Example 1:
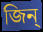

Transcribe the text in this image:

জিন্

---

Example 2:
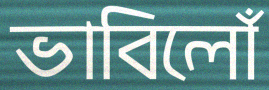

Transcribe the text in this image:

ভাবিলোঁ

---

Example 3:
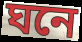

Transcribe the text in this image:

ঘনে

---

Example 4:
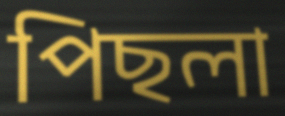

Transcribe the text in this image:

পিছলা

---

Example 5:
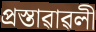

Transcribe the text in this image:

প্ৰস্তাৱাৱলী